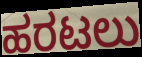
ಹರಟಲು